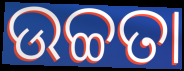
ଉଚ୍ଚତା